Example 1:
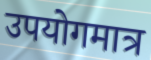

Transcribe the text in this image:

उपयोगमात्र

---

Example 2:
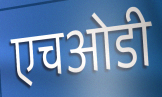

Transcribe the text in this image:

एचओडी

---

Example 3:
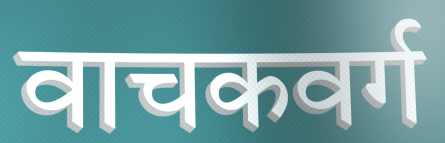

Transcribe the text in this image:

वाचकवर्ग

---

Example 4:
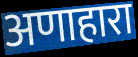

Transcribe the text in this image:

अणाहारा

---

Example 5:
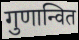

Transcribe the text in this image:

गुणान्वित